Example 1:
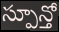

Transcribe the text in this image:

స్పూన్తో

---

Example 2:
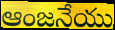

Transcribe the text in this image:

ఆంజనేయు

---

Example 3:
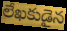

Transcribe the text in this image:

లేఖకుడైన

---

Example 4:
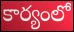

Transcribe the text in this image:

కార్యంలో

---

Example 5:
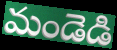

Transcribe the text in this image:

మండెడి